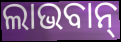
ଲାଭବାନ୍